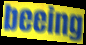
beeing